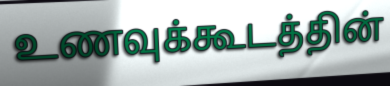
உணவுக்கூடத்தின்